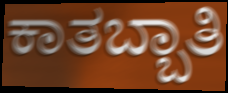
ಕಾತಬ್ಬಾತಿ